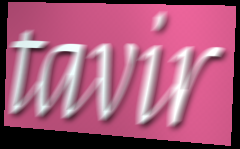
tavir